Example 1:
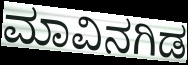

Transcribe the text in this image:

ಮಾವಿನಗಿಡ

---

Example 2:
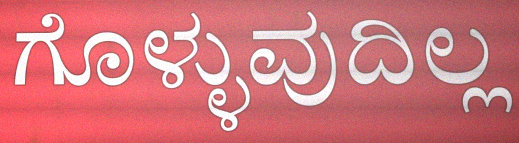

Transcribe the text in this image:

ಗೊಳ್ಳುವುದಿಲ್ಲ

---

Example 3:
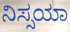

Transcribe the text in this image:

ನಿಸ್ಸಯಾ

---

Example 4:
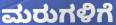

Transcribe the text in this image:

ಮರುಗಳಿಗೆ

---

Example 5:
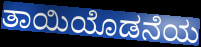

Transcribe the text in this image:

ತಾಯಿಯೊಡನೆಯ